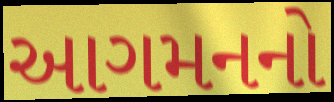
આગમનનો